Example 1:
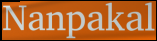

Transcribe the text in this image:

Nanpakal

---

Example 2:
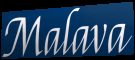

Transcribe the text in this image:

Malava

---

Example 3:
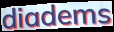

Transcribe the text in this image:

diadems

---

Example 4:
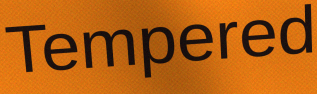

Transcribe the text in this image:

Tempered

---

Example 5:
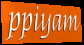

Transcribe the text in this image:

ppiyam